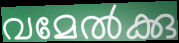
വമേൽക്കു